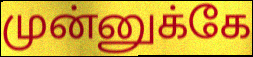
முன்னுக்கே